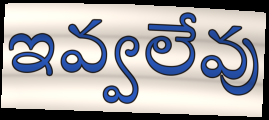
ఇవ్వలేవు